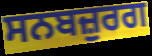
ਸਨਬਜ਼ੁਰਗ